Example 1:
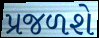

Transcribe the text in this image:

પ્રજળશે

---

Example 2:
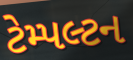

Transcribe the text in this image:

ટેમ્પલ્ટન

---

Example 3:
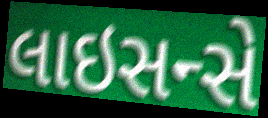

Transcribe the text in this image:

લાઇસન્સે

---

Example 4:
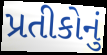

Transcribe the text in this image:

પ્રતીકોનું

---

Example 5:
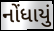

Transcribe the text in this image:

નોંધાયું